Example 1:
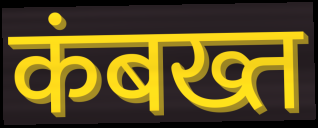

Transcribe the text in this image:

कंबख्त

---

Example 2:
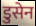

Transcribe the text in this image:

डुसेन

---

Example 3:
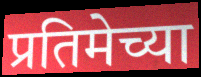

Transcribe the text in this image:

प्रतिमेच्या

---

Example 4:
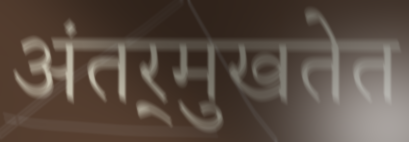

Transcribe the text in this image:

अंतर्मुखतेत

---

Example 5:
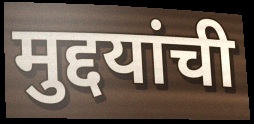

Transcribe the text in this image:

मुद्दयांची